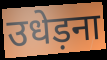
उधेड़ना